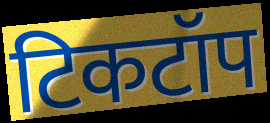
टिकटॉप